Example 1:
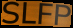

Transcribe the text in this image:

SLFP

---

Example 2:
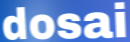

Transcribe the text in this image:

dosai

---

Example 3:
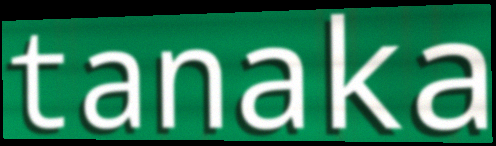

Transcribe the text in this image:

tanaka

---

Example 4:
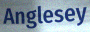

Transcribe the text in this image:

Anglesey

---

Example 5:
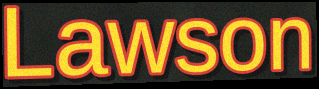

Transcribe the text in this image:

Lawson